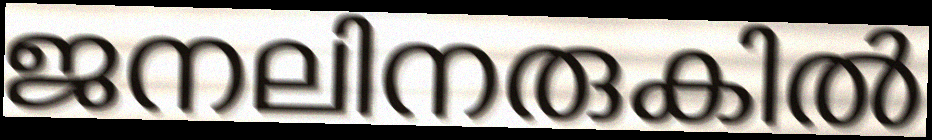
ജനലിനരുകിൽ